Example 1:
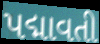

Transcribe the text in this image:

પદ્માવતી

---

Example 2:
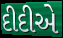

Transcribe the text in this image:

દીદીએ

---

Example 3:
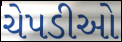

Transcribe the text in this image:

ચેપડીઓ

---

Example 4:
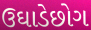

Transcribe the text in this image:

ઉઘાડેછોગ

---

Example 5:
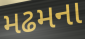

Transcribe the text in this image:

મઢમના